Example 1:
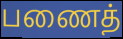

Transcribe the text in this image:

பணைத்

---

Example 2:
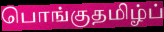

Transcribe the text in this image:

பொங்குதமிழ்ப்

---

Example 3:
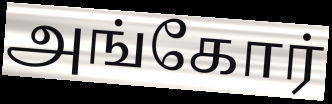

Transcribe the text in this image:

அங்கோர்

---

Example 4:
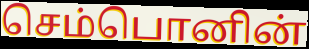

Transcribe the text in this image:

செம்பொனின்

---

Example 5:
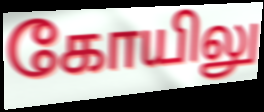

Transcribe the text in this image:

கோயிலு